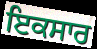
ਇਕਸਾਰ